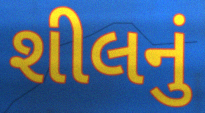
શીલનું